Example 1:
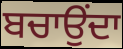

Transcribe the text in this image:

ਬਚਾਉਂਦਾ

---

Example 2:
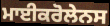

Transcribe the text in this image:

ਮਾਈਕਰੋਲੇਨਸ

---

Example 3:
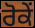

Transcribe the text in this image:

ਰੋਕੇਂ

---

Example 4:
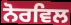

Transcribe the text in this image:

ਨੋਰਵਿਲ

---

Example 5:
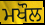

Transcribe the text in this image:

ਮਖੌਲ